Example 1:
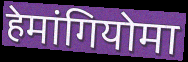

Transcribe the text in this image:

हेमांगियोमा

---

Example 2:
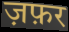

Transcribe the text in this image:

ज़फ़र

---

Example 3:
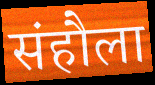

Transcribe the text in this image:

संहौला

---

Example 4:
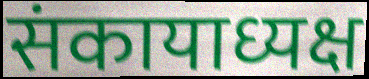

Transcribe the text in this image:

संकायाध्यक्ष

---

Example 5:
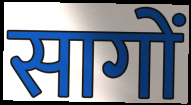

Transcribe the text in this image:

सागों